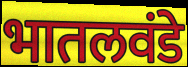
भातलवंडे